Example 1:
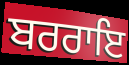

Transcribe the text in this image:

ਬਰਰਾਇ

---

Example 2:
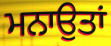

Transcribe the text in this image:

ਮਨਾਉਤਾਂ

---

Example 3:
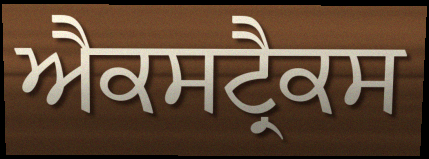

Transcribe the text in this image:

ਐਕਸਟ੍ਰੈਕਸ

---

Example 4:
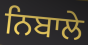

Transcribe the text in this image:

ਨਿਬਾਲੇ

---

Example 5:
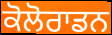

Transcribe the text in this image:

ਕੋਲੋਰਾਡਨ